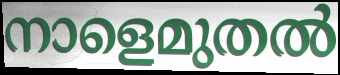
നാളെമുതൽ